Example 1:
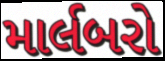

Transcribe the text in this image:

માર્લબરો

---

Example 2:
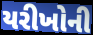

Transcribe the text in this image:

યરીખોની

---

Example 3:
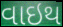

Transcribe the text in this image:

વાઇથ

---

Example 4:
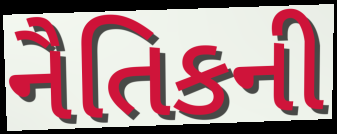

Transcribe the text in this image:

નૈતિકની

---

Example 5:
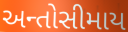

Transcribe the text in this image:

અન્તોસીમાય